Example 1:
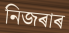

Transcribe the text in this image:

নিজৰাৰ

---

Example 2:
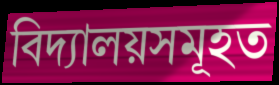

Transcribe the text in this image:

বিদ্যালয়সমূহত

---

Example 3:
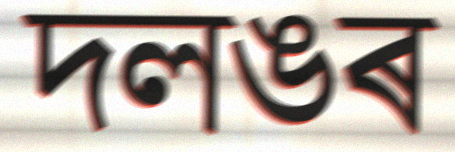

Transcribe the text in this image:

দলঙৰ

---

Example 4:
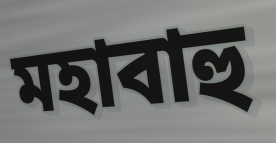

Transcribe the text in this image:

মহাবাহু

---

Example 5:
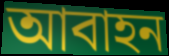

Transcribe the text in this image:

আবাহন